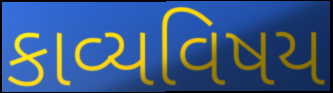
કાવ્યવિષય